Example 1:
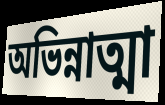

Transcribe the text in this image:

অভিন্নাত্মা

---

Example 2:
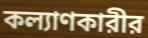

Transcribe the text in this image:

কল্যাণকারীর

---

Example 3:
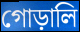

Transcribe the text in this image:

গোড়ালি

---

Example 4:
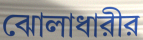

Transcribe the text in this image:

ঝোলাধারীর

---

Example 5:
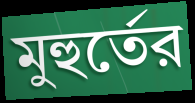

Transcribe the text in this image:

মুহুর্তের